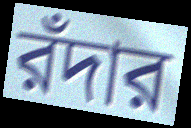
রঁদার